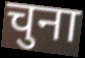
चुना